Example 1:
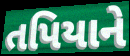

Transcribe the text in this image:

તપિયાને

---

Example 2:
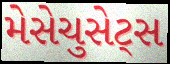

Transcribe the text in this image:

મેસેચુસેટ્સ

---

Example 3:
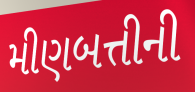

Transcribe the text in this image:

મીણબત્તીની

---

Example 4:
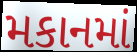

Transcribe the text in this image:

મકાનમાં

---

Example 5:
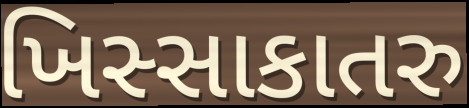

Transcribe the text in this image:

ખિસ્સાકાતરુ